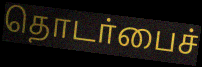
தொடர்பைச்